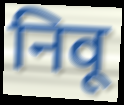
निवू